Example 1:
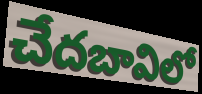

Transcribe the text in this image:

చేదబావిలో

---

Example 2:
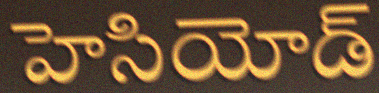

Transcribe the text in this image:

హెసియోడ్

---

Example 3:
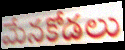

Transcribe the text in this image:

మేనకోడలు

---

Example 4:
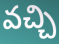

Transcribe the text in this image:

వచ్చి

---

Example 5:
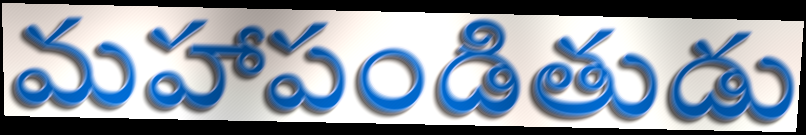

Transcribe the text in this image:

మహాపండితుడు